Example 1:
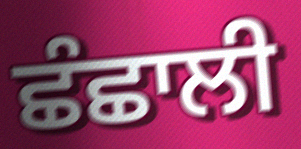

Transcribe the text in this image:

ਛੰਛਾਲੀ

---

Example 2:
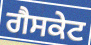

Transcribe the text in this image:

ਗੈਸਕੇਟ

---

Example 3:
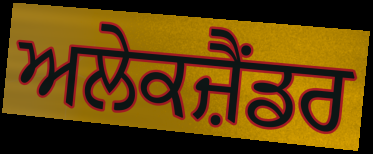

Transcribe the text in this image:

ਅਲੇਕਜ਼ੈਂਡਰ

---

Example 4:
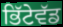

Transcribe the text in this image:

ਭਿੱਟੇਵੱਡ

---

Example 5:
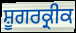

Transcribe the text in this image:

ਸ਼ੂਗਰਕ੍ਰੀਕ